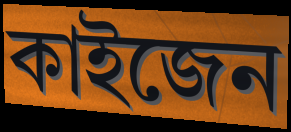
কাইজেন